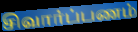
சிவார்ப்பணம்